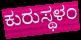
ಕುರುಸ್ಥಳಂ